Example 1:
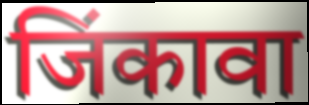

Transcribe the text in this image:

जिंकावा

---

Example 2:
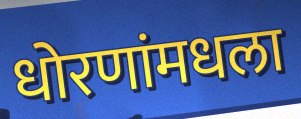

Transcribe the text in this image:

धोरणांमधला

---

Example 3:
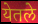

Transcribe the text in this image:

येतले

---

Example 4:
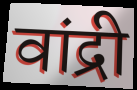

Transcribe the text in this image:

वांद्री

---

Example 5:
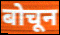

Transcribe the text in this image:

बोचून